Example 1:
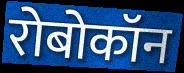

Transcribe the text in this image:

रोबोकॉन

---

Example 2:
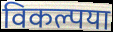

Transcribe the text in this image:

विकल्पया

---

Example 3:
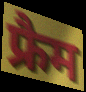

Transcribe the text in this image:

फ्रैम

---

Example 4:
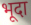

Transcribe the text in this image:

भूदा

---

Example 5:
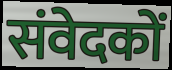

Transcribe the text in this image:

संवेदकों